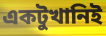
একটুখানিই